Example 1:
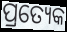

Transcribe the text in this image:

ପ୍ରତ୍ୟେକ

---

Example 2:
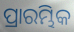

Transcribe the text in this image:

ପ୍ରାରମ୍ଭିକ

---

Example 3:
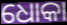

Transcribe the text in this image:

ଧୋକା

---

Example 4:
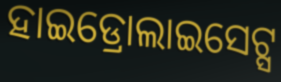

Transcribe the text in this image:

ହାଇଡ୍ରୋଲାଇସେଟ୍ସ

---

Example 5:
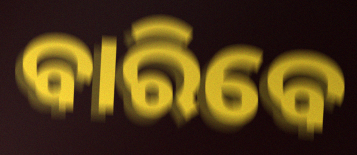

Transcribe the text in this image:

ବାରିବେ